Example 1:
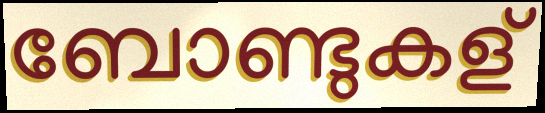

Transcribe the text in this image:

ബോണ്ടുകള്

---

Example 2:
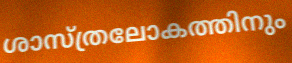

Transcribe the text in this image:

ശാസ്ത്രലോകത്തിനും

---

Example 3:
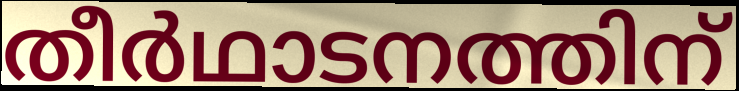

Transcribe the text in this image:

തീർഥാടനത്തിന്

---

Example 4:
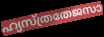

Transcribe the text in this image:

ഹ്യസ്ത്രതേജസാ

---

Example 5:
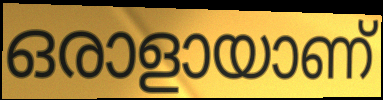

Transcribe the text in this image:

ഒരാളായാണ്